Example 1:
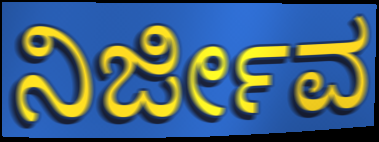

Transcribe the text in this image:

ನಿರ್ಜೀವ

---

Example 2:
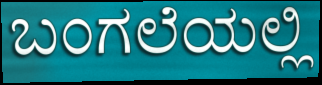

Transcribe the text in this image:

ಬಂಗಲೆಯಲ್ಲಿ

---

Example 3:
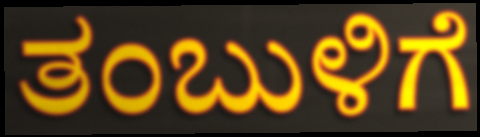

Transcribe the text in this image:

ತಂಬುಳಿಗೆ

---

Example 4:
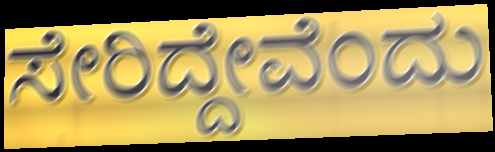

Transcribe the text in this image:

ಸೇರಿದ್ದೇವೆಂದು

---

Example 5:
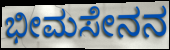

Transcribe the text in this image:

ಭೀಮಸೇನನ